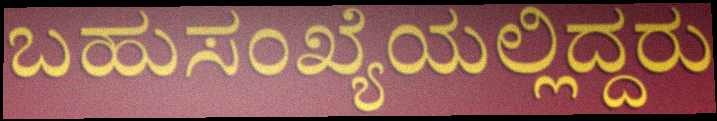
ಬಹುಸಂಖ್ಯೆಯಲ್ಲಿದ್ದರು